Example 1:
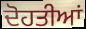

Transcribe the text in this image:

ਦੋਹਤੀਆਂ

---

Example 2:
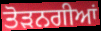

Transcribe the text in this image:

ਤੋੜਨਗੀਆਂ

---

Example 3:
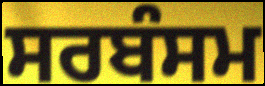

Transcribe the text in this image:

ਸਰਬੰਸਮ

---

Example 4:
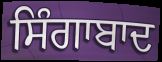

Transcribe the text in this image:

ਸਿੰਗਾਬਾਦ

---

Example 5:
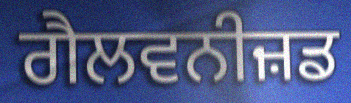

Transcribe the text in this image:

ਗੈਲਵਨੀਜ਼ਡ